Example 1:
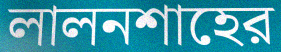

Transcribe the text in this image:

লালনশাহের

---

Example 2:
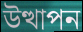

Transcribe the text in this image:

উত্থাপন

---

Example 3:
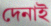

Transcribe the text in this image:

দেনাই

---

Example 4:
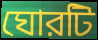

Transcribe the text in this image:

ঘোরটি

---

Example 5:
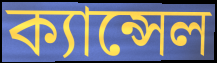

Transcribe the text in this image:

ক্যান্সেল